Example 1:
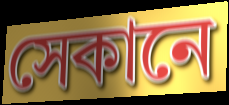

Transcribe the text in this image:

সেকানে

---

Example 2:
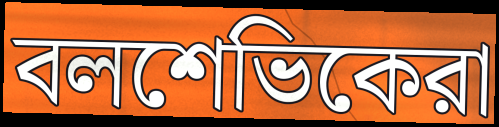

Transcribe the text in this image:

বলশেভিকেরা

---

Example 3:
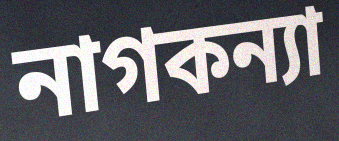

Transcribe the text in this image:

নাগকন্যা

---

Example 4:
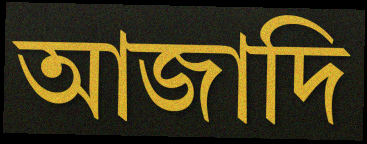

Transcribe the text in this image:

আজাদি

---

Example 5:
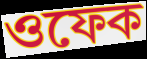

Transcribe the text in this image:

ওফেক